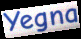
Yegna